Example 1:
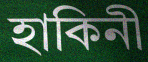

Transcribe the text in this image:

হাকিনী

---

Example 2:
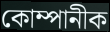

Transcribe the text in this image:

কোম্পানীক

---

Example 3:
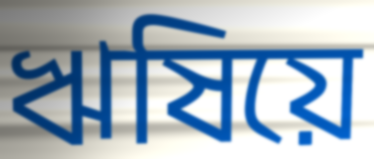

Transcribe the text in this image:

ঋষিয়ে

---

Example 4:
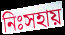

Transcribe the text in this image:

নিঃসহায়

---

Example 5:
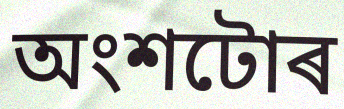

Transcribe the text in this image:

অংশটোৰ